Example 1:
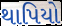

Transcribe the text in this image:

થાપિયો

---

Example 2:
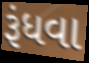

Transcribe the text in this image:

રૂંધવા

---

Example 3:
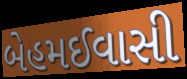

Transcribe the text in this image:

બેહમઈવાસી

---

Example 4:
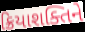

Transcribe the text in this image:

ક્રિયાશક્તિને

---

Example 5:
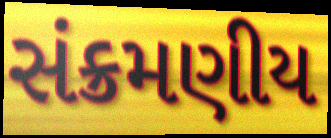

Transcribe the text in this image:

સંક્રમણીય